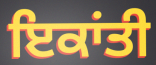
ਇਕਾਂਤੀ